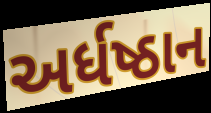
અર્ધષ્ઠાન